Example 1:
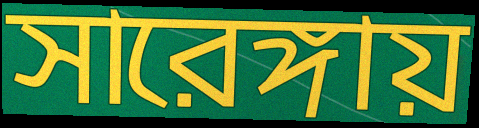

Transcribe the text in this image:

সারেঙ্গায়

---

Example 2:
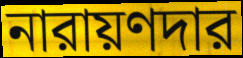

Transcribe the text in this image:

নারায়ণদার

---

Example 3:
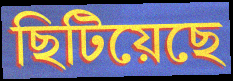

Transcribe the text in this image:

ছিটিয়েছে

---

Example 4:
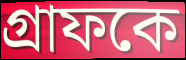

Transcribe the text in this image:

গ্রাফকে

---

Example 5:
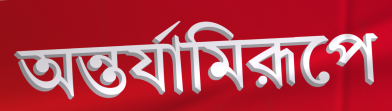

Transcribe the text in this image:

অন্তর্যামিরূপে